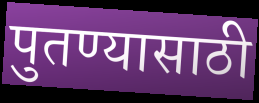
पुतण्यासाठी